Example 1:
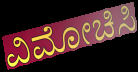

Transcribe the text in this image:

ವಿಮೋಚಿಸಿ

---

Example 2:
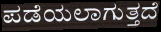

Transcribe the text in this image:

ಪಡೆಯಲಾಗುತ್ತದೆ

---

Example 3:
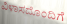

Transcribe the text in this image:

ವಿಳಾಸದೊಂದಿಗೆ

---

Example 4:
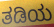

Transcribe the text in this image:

ತಡಿಯ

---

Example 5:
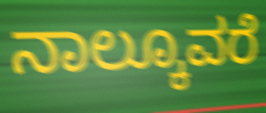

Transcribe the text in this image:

ನಾಲ್ಕೂವರೆ